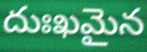
దుఃఖమైన